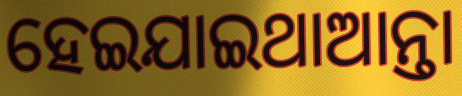
ହେଇଯାଇଥାଆନ୍ତା